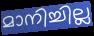
മാനിച്ചില്ല